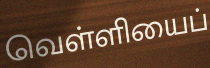
வெள்ளியைப்